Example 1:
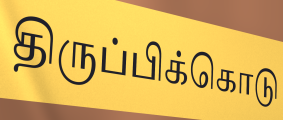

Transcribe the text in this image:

திருப்பிக்கொடு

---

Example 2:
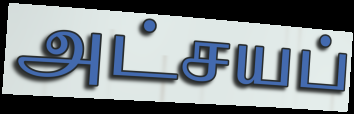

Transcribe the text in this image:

அட்சயப்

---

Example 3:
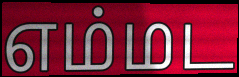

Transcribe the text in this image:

எம்மட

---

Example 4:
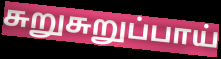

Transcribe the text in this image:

சுறுசுறுப்பாய்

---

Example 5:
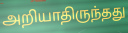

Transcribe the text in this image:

அறியாதிருந்தது